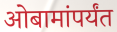
ओबामांपर्यंत